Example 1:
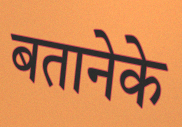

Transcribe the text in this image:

बतानेके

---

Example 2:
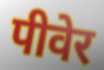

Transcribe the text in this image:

पीवेर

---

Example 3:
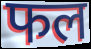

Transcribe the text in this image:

फल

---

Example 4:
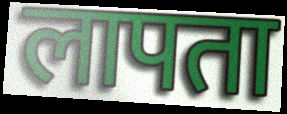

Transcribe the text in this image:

लापता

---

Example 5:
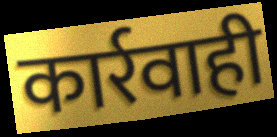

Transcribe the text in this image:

कार्रवाही